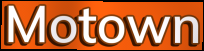
Motown